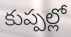
కుప్పల్లో